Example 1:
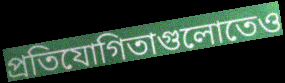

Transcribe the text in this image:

প্রতিযোগিতাগুলোতেও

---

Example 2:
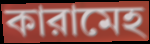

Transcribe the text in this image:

কারামেহ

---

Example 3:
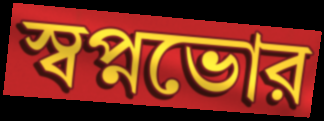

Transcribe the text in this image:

স্বপ্নভোর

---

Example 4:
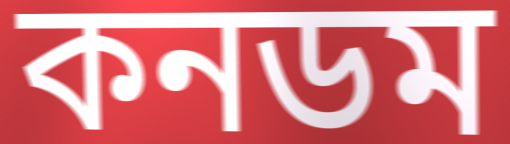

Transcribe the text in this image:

কনডম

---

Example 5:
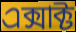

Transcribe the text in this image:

এক্সাক্ট